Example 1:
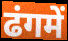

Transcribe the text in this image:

ढंगमें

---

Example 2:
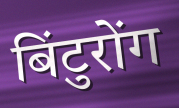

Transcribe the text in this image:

बिंटुरोंग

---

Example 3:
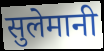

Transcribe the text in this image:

सुलेमानी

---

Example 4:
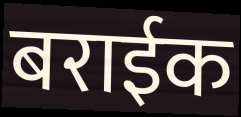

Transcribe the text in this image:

बराईक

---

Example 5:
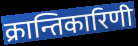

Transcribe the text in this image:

क्रान्तिकारिणी